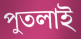
পুতলাই